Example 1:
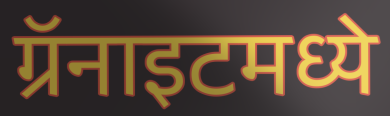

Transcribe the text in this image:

ग्रॅनाइटमध्ये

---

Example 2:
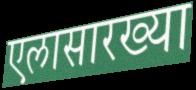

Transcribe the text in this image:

एलासारख्या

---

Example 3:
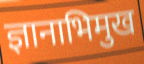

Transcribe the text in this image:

ज्ञानाभिमुख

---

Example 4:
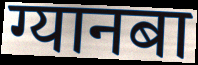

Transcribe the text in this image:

ग्यानबा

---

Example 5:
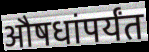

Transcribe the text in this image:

औषधांपर्यंत